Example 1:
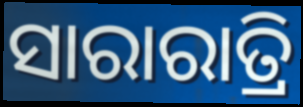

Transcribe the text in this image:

ସାରାରାତ୍ରି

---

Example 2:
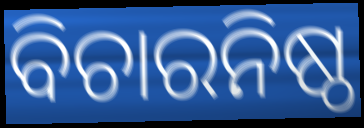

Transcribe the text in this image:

ବିଚାରନିଷ୍ଠ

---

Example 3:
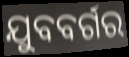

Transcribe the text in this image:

ଯୁବବର୍ଗର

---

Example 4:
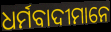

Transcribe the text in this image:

ଧର୍ମବାଦୀମାନେ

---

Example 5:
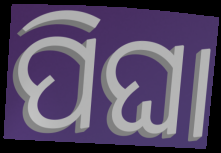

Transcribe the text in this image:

ପିଘା